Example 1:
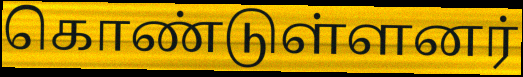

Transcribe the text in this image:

கொண்டுள்ளனர்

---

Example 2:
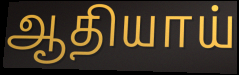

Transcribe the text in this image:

ஆதியாய்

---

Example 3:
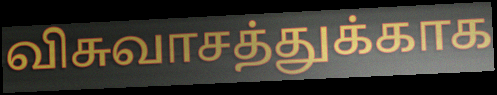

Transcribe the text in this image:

விசுவாசத்துக்காக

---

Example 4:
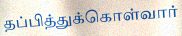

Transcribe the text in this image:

தப்பித்துக்கொள்வார்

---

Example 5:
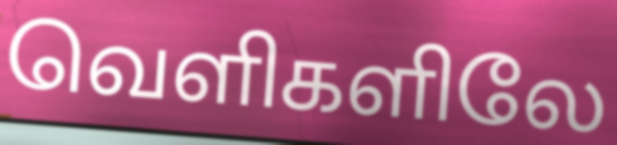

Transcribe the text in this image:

வெளிகளிலே